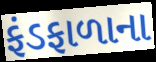
ફંડફાળાના